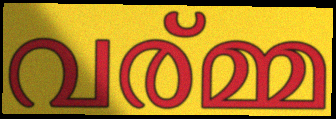
വര്മ്മ